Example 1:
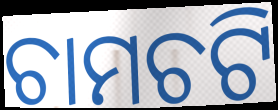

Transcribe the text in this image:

ଚାମଚଟି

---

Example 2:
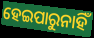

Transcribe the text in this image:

ହେଇପାରୁନାହିଁ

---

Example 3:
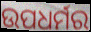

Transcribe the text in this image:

ଉପଧର୍ମର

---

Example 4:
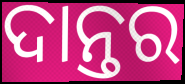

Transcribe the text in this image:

ଦାନ୍ତର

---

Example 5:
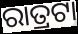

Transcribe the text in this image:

ରାତ୍ରଟା